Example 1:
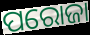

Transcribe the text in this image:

ପରୋଜା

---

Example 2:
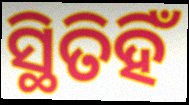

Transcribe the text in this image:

ସ୍ଥିତିହିଁ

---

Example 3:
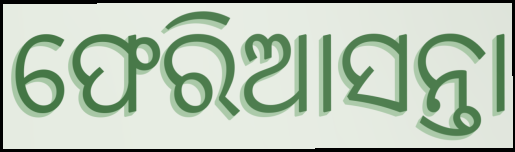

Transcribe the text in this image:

ଫେରିଆସନ୍ତା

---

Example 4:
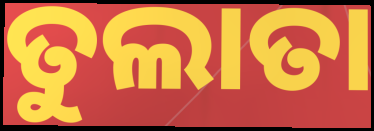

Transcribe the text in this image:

ତୁଲାତା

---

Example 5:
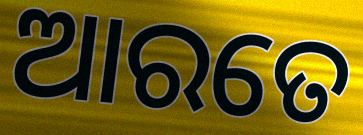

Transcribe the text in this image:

ଆରତେ